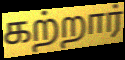
கற்றார்